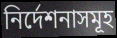
নির্দেশনাসমূহ